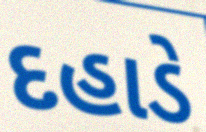
દહાડે